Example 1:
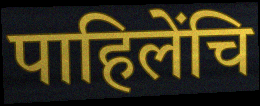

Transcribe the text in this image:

पाहिलेंचि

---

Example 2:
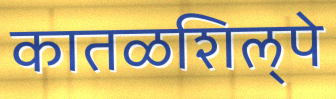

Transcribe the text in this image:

कातळशिल्पे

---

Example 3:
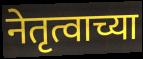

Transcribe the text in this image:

नेतृत्वाच्या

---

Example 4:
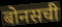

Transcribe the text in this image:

बोनसची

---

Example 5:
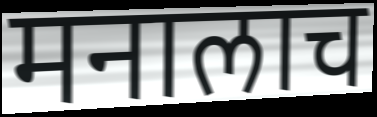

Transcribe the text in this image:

मनालाच